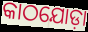
କାଠଯୋଡ଼ା